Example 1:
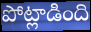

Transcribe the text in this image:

పోట్లాడింది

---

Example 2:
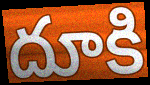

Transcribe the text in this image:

దూకి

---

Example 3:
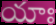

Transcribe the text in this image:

యాః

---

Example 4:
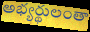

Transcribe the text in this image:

అభ్యర్థులంతా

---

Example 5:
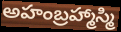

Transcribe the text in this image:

అహంబ్రహ్మాస్మి